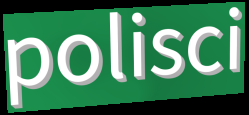
polisci